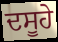
ਦਸੂਹੇ